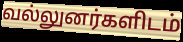
வல்லுனர்களிடம்